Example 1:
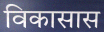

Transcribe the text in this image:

विकासास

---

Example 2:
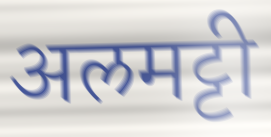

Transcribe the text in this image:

अलमट्टी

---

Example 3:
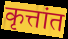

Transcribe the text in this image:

कृत्तांत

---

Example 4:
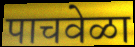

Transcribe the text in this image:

पाचवेळा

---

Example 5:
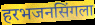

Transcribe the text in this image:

हरभजनसिंगला